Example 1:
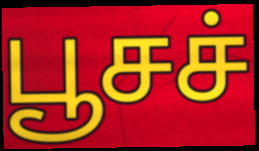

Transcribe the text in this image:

பூசச்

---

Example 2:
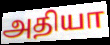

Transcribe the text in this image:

அதியா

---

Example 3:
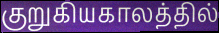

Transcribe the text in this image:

குறுகியகாலத்தில்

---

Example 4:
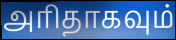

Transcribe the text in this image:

அரிதாகவும்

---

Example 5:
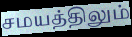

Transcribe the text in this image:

சமயத்திலும்